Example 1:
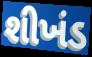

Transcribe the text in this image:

શીખંડ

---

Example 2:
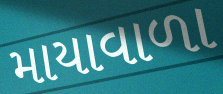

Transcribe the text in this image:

માયાવાળા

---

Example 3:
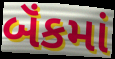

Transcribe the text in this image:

બૅંકમાં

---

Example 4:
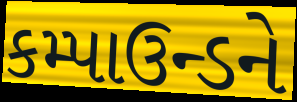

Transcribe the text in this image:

કમ્પાઉન્ડને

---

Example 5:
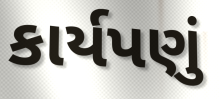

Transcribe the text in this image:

કાર્યપણું